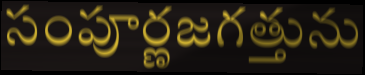
సంపూర్ణజగత్తును